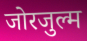
जोरजुल्म